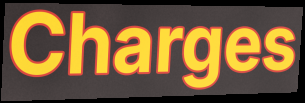
Charges